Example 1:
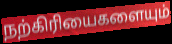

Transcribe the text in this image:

நற்கிரியைகளையும்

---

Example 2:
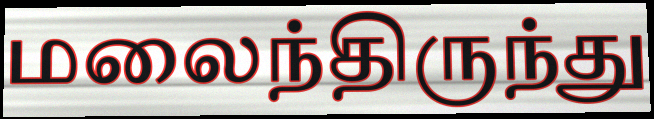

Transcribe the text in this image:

மலைந்திருந்து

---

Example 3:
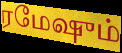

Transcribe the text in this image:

ரமேஷும்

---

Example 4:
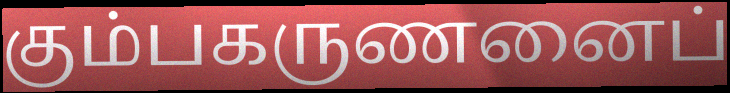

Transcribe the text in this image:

கும்பகருணனைப்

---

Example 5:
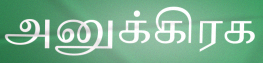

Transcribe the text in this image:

அனுக்கிரக